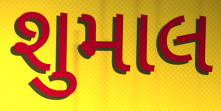
શુમાલ